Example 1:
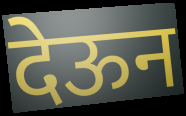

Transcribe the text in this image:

देऊन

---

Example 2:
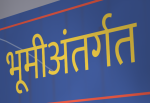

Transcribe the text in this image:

भूमीअंतर्गत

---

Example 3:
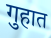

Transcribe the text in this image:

गुहात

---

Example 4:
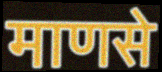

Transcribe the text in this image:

माणसे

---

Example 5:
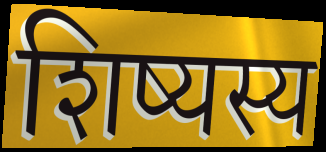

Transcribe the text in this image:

शिष्यस्य